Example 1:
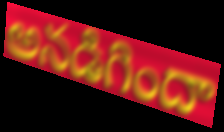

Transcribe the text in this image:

అనడిగిందా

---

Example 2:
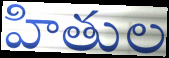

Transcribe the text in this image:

హితుల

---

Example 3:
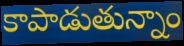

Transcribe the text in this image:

కాపాడుతున్నాం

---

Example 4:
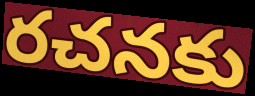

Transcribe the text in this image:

రచనకు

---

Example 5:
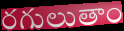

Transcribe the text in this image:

రగులుతాం